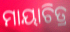
ମାୟାଚିତ୍ର